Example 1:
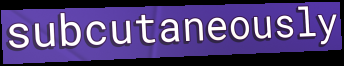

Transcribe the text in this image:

subcutaneously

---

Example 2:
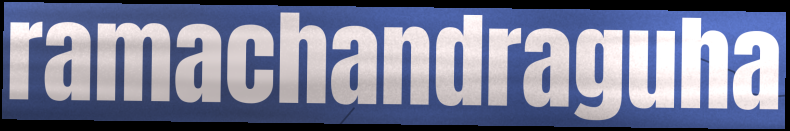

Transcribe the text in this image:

ramachandraguha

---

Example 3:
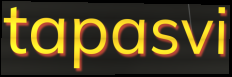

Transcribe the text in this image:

tapasvi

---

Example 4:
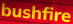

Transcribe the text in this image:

bushfire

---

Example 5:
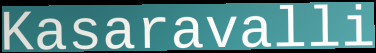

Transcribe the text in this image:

Kasaravalli